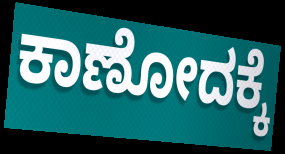
ಕಾಣೋದಕ್ಕೆ